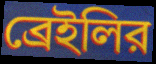
ব্রেইলির